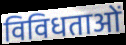
विविधताओं